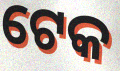
ଟେକ